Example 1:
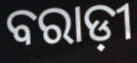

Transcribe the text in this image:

ବରାଡ଼ୀ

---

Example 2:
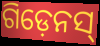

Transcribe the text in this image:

ଗିଡ଼େନସ୍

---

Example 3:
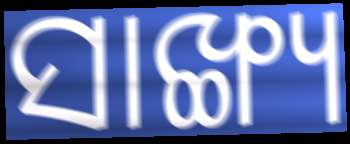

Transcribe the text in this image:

ସାଙ୍ଖ୍ୟ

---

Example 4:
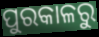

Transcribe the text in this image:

ପୁରକାଳରୁ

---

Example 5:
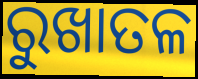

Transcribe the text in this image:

ରୁଖାତଳ